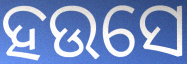
ହଉସେ